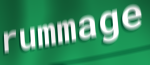
rummage